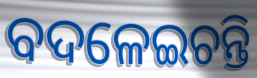
ବଦଳେଇଚନ୍ତି